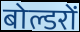
बोल्डरों